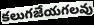
కలుగజేయగలవు